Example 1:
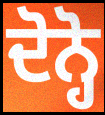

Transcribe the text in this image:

ਦੋਨ੍ਹੋ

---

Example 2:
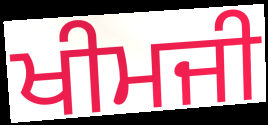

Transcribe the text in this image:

ਖੀਮਜੀ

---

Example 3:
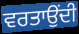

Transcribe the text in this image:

ਵਰਤਾਉਂਦੀ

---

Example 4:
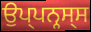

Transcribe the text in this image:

ਉਪ੍ਪਨ੍ਨਸ੍ਸ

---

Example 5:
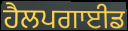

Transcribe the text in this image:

ਹੈਲਪਗਾਈਡ